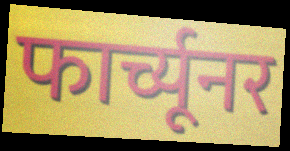
फार्च्यूनर